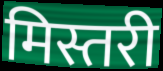
मिस्तरी